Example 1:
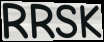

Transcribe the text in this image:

RRSK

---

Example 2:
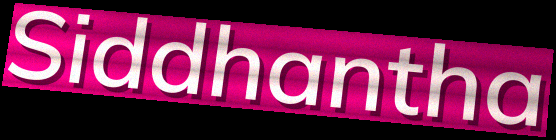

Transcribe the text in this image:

Siddhantha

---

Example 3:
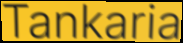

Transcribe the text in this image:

Tankaria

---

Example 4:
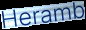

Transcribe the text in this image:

Heramb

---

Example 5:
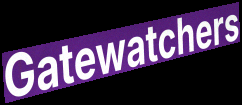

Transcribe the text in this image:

Gatewatchers